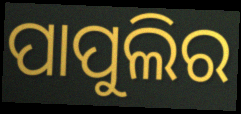
ପାପୁଲିର